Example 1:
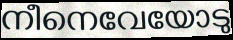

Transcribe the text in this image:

നീനെവേയോടു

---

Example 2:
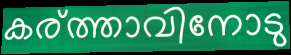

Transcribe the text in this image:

കര്ത്താവിനോടു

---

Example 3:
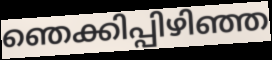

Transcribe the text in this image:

ഞെക്കിപ്പിഴിഞ്ഞ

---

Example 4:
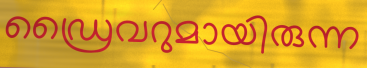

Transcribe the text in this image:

ഡ്രൈവറുമായിരുന്ന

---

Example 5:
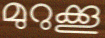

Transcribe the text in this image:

മുറുക്കൂ